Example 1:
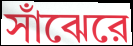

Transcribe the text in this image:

সাঁঝেরে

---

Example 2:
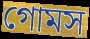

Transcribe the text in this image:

গোমস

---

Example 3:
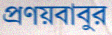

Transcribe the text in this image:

প্রণয়বাবুর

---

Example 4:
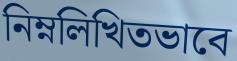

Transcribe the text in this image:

নিম্নলিখিতভাবে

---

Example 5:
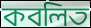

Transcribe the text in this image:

কবলিত